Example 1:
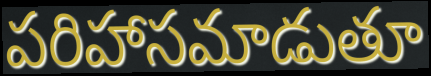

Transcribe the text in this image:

పరిహాసమాడుతూ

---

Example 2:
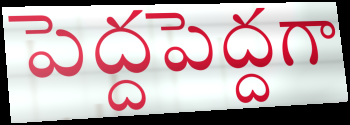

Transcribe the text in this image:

పెద్దపెద్దగా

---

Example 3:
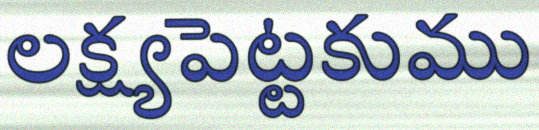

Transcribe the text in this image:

లక్ష్యపెట్టకుము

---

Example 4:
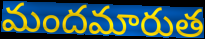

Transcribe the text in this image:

మందమారుత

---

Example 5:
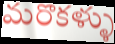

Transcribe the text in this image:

మరొకళ్ళు